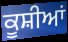
ਕੂਸ਼ੀਆਂ